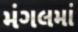
મંગલમાં